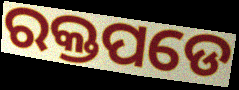
ରକ୍ତପଡେ